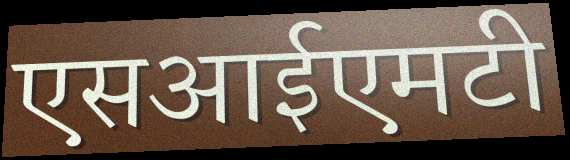
एसआईएमटी